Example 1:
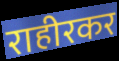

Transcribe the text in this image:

राहीरकर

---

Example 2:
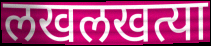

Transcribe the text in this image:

लखलखत्या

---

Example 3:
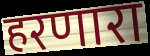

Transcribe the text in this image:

हरणारा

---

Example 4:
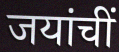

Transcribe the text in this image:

जयांचीं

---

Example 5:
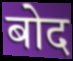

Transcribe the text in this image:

बोद